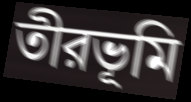
তীরভূমি